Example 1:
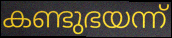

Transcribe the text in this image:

കണ്ടുഭയന്ന്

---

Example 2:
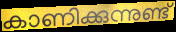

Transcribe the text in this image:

കാണിക്കുന്നുണ്ട്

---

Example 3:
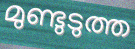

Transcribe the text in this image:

മുണ്ടുടുത്ത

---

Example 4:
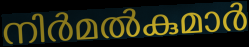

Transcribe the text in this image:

നിർമൽകുമാർ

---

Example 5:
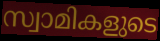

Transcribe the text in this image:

സ്വാമികളുടെ